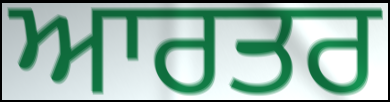
ਆਰਤਰ